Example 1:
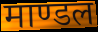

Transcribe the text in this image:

माण्डल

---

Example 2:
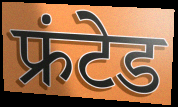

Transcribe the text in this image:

फ्रंटेड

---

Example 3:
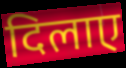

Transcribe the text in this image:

दिलाए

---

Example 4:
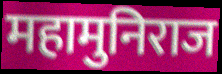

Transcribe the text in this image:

महामुनिराज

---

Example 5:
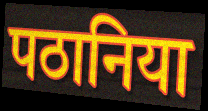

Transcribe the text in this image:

पठानिया